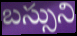
బస్సుని